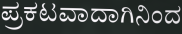
ಪ್ರಕಟವಾದಾಗಿನಿಂದ